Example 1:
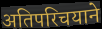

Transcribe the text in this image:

अतिपरिचयाने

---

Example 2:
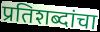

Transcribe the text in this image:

प्रतिशब्दांचा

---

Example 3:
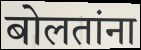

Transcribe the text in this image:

बोलतांना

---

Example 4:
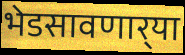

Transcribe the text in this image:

भेडसावणार्‍या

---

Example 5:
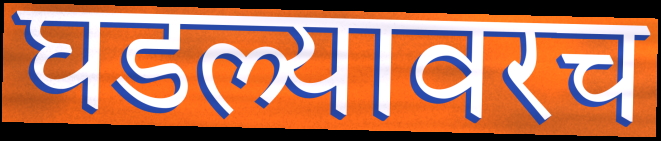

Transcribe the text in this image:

घडल्यावरच